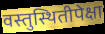
वस्तुस्थितीपेक्षा